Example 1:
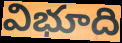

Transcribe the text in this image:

విభూది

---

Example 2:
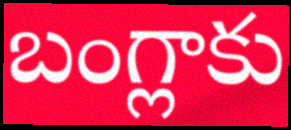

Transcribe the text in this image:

బంగ్లాకు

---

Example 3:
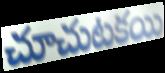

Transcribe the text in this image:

చూచుటకయి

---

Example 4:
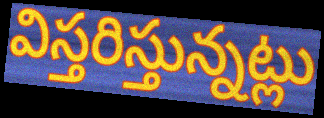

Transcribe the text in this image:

విస్తరిస్తున్నట్లు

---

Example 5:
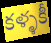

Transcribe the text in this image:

కళ్ళకీ